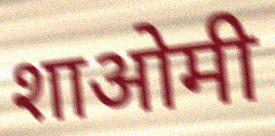
शाओमी